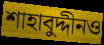
শাহাবুদ্দীনও